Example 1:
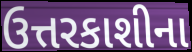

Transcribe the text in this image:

ઉત્તરકાશીના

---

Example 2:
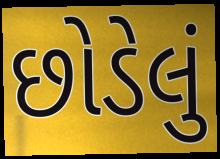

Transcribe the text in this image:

છોડેલું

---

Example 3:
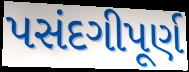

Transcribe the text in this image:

પસંદગીપૂર્ણ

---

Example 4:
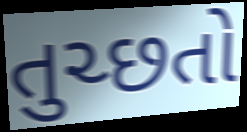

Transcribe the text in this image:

તુચ્છતો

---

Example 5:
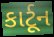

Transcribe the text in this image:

કાર્ટૂન